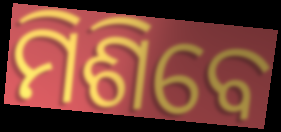
ମିଶିବେ